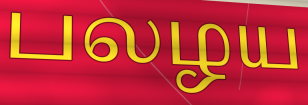
பலழய